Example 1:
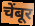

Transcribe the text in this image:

चेंबूर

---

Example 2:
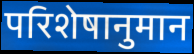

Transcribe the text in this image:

परिशेषानुमान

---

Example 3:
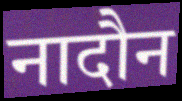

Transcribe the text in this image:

नादौन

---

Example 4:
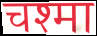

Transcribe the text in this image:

चश्मा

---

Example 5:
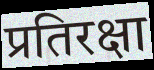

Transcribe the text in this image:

प्रतिरक्षा